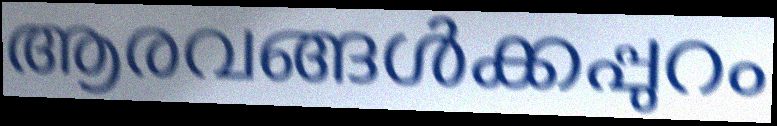
ആരവങ്ങൾക്കപ്പുറം